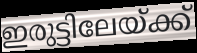
ഇരുട്ടിലേയ്ക്ക്